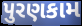
પુરણકામ